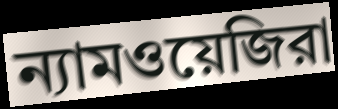
ন্যামওয়েজিরা